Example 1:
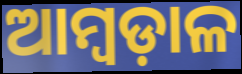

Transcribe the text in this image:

ଆମ୍ବଡ଼ାଳ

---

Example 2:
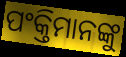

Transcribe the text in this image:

ପଂକ୍ତିମାନଙ୍କୁ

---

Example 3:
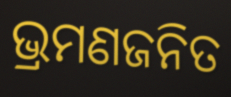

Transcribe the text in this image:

ଭ୍ରମଣଜନିତ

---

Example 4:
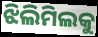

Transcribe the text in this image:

ଝିଲିମିଲକୁ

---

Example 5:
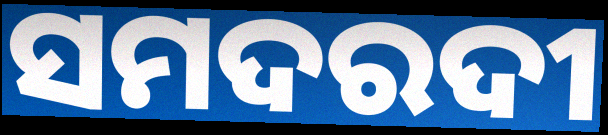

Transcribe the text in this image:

ସମଦରଦୀ